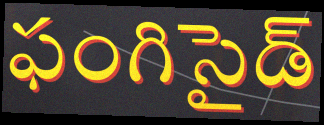
ఫంగిసైడ్